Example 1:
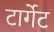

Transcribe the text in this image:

टार्गेट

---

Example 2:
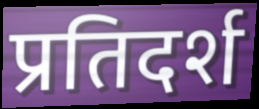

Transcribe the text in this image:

प्रतिदर्श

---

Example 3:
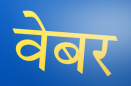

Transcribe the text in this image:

वेबर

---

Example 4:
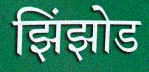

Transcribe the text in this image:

झिंझोड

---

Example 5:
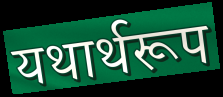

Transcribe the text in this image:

यथार्थरूप